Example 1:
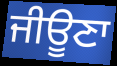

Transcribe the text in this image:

ਜੀਊਣਾ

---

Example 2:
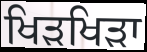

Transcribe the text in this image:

ਖਿੜਖਿੜਾ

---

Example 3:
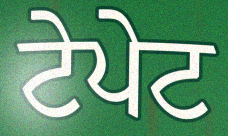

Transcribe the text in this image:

ਟੇਪੇਟ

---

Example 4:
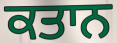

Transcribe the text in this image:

ਕਤਾਨ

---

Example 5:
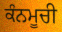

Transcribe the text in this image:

ਕੰਨਮੂਚੀ